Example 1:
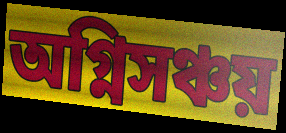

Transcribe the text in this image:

অগ্নিসঞ্চয়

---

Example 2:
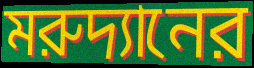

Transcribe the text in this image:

মরুদ্যানের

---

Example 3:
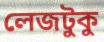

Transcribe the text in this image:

লেজটুকু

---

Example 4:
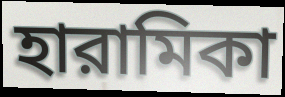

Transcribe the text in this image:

হারামিকা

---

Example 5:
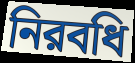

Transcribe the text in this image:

নিরবধি